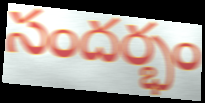
సందర్భం